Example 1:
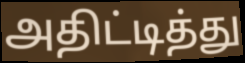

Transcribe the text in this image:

அதிட்டித்து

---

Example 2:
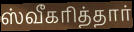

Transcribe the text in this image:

ஸ்வீகரித்தார்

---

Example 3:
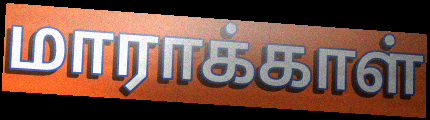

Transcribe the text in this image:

மாராக்காள்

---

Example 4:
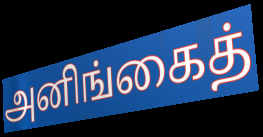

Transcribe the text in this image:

அனிங்கைத்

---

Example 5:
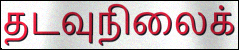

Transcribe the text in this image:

தடவுநிலைக்